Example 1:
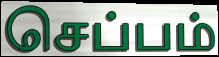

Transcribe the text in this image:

செப்பம்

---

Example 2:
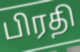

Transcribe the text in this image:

பிரதி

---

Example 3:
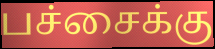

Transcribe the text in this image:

பச்சைக்கு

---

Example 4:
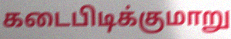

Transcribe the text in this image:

கடைபிடிக்குமாறு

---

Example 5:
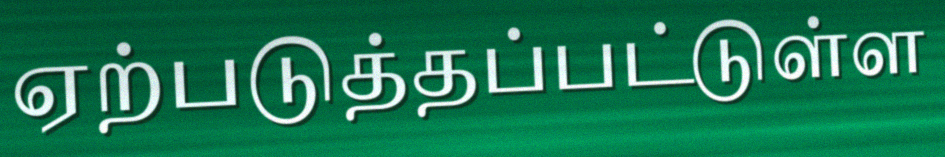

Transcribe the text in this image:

ஏற்படுத்தப்பட்டுள்ள